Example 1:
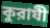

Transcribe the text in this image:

কুরাযী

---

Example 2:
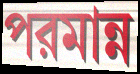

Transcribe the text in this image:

পরমান্ন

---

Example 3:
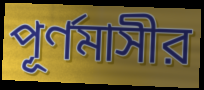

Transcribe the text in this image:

পূর্ণমাসীর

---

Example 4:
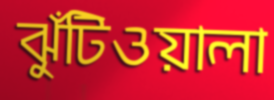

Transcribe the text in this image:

ঝুঁটিওয়ালা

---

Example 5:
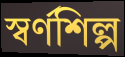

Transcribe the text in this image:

স্বর্ণশিল্প